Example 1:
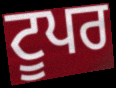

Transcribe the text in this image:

ਟੂਪਰ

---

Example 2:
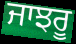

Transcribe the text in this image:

ਜਾਝਰੂ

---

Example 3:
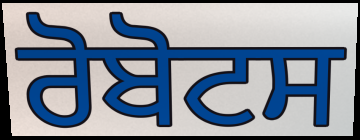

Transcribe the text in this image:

ਰੋਬੋਟਸ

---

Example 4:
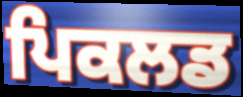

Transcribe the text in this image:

ਪਿਕਲਡ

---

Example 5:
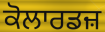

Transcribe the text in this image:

ਕੋਲਾਰਡਜ਼